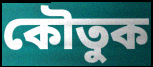
কৌতুক